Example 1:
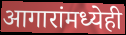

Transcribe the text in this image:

आगारांमध्येही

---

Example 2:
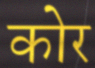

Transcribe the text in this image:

कोर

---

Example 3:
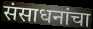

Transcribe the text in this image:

संसाधनांचा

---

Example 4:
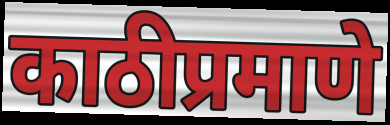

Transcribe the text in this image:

काठीप्रमाणे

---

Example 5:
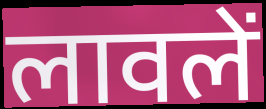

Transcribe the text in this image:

लावलें